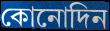
কোনোদিন